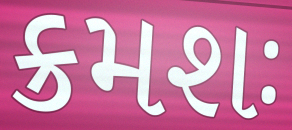
ક્રમશઃ